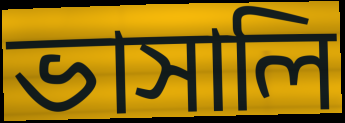
ভাসালি